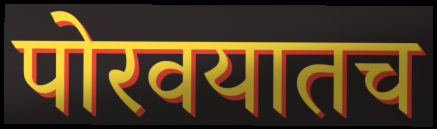
पोरवयातच